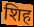
शिह